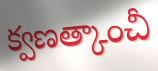
క్వణత్కాంచీ